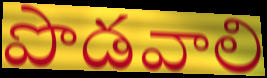
పొడవాలి